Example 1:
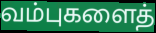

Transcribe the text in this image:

வம்புகளைத்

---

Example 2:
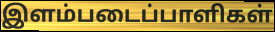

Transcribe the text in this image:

இளம்படைப்பாளிகள்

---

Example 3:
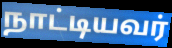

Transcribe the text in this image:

நாட்டியவர்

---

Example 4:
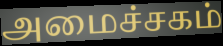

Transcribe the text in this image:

அமைச்சகம்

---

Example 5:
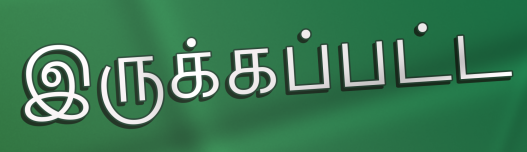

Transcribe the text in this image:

இருக்கப்பட்ட